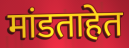
मांडताहेत